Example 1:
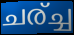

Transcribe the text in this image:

ചര്ച്ച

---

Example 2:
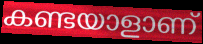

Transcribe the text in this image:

കണ്ടയാളാണ്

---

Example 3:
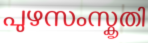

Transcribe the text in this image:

പുഴസംസ്കൃതി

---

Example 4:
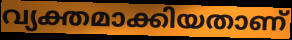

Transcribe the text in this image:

വ്യക്തമാക്കിയതാണ്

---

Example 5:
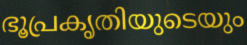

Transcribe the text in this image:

ഭൂപ്രകൃതിയുടെയും